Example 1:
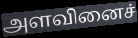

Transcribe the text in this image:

அளவினைச்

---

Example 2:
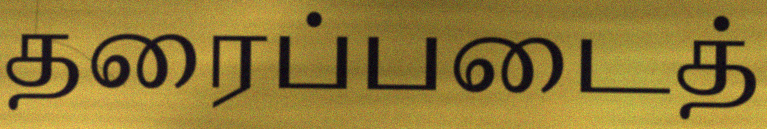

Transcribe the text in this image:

தரைப்படைத்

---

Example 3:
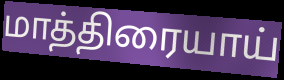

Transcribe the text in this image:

மாத்திரையாய்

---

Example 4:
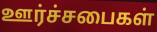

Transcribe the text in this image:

ஊர்ச்சபைகள்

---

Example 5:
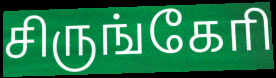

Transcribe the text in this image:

சிருங்கேரி